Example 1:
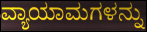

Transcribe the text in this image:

ವ್ಯಾಯಾಮಗಳನ್ನು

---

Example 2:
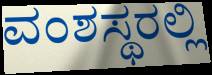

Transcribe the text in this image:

ವಂಶಸ್ಥರಲ್ಲಿ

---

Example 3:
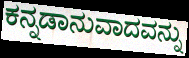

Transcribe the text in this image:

ಕನ್ನಡಾನುವಾದವನ್ನು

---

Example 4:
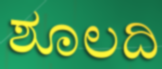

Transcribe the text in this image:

ಶೂಲದಿ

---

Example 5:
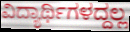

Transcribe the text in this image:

ವಿದ್ಯಾರ್ಥಿಗಳದ್ದಲ್ಲ